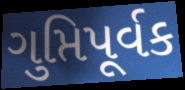
ગુપ્તિપૂર્વક